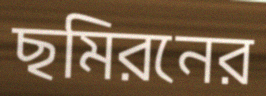
ছমিরনের